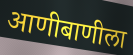
आणीबाणीला